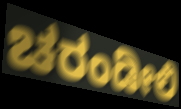
ಚರಂಡೀಲಿ